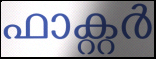
ഫാക്റ്റർ